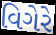
વિગેરે